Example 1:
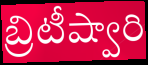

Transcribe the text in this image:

బ్రిటీష్వారి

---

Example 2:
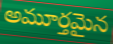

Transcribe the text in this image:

అమూర్తమైన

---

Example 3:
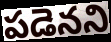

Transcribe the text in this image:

పడెనని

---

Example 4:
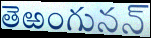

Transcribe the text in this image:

తెఱంగునన్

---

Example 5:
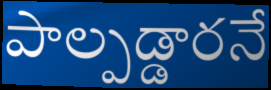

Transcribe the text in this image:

పాల్పడ్డారనే